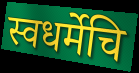
स्वधर्मेचि